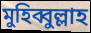
মুহিব্বুল্লাহ